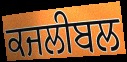
ਕਜਲੀਬਲ